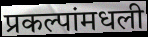
प्रकल्पांमधली